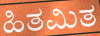
ಹಿತಮಿತ